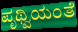
ಪೃಥ್ವಿಯಂತೆ